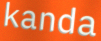
kanda